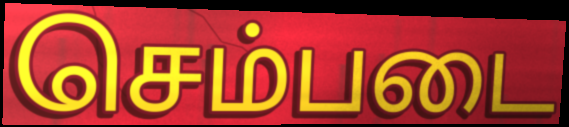
செம்படை